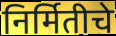
निर्मितीचे